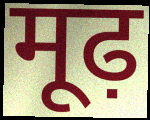
मूढ़